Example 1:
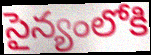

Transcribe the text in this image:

సైన్యంలోకి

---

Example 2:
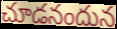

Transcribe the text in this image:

చూడనందున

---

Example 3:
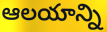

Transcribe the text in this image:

ఆలయాన్ని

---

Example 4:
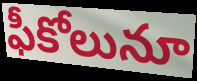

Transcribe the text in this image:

ఫీకోలునూ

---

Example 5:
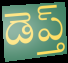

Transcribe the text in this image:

డెప్త్